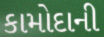
કામોદાની